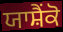
ਯਾਸ਼ੈਂਕੋ